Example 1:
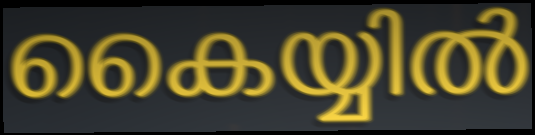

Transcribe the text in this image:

കൈയ്യിൽ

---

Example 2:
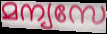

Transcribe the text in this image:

മന്യസേ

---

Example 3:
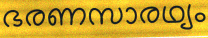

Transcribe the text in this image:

ഭരണസാരഥ്യം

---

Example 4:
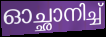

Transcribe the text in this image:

ഓച്ഛാനിച്ച്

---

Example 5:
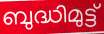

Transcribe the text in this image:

ബുദ്ധിമുട്ട്